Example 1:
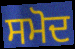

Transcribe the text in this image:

ਸਮੋਦ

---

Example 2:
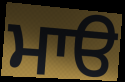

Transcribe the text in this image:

ਮਾੳ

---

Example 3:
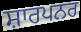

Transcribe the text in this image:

ਸ਼ਾਰਪਨਰ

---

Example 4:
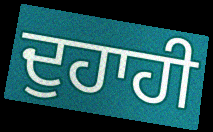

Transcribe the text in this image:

ਦੁਹਾਹੀ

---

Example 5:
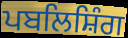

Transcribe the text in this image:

ਪਬਲਿਸ਼ਿੰਗ